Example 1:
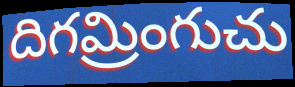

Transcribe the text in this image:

దిగమ్రింగుచు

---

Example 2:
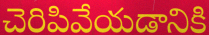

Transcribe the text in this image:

చెరిపివేయడానికి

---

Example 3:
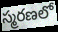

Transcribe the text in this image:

స్మరణలో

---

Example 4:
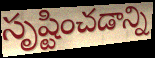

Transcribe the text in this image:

సృష్టించడాన్ని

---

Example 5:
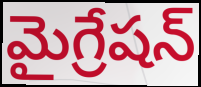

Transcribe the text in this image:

మైగ్రేషన్